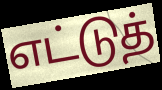
எட்டுத்